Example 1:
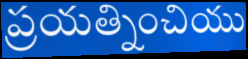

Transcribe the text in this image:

ప్రయత్నించియు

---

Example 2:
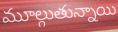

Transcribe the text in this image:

మూల్గుతున్నాయి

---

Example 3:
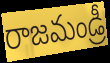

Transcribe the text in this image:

రాజమండ్రీ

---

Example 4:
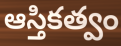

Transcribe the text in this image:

ఆస్తికత్వం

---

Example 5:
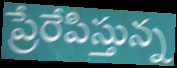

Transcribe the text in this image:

ప్రేరేపిస్తున్న